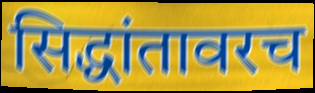
सिद्धांतावरच